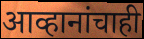
आव्हानांचाही